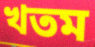
খতম